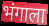
भंगाला